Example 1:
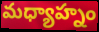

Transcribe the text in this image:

మధ్యాహ్నం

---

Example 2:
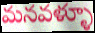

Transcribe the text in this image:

మనవళ్ళూ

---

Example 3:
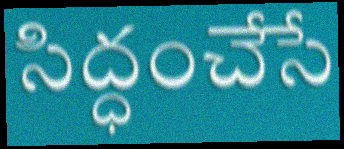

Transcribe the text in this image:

సిద్ధంచేసే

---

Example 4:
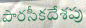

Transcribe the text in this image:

పారసీకదేశపు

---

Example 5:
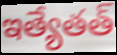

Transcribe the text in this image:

ఇత్యేతత్